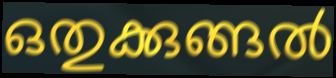
ഒതുക്കുങ്ങൽ